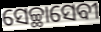
ସେଚ୍ଛାସେବୀ